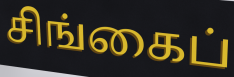
சிங்கைப்